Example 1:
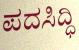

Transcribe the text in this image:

ಪದಸಿದ್ಧಿ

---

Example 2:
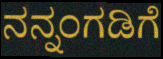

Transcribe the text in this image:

ನನ್ನಂಗಡಿಗೆ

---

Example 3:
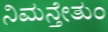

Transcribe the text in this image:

ನಿಮನ್ತೇತುಂ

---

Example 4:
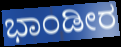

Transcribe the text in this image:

ಭಾಂಡೀರ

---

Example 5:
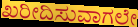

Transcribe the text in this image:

ಖರೀದಿಸುವಾಗಲೇ